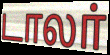
டாலர்